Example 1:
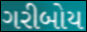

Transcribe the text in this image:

ગરીબોય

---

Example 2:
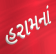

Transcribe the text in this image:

હરામનાં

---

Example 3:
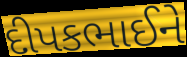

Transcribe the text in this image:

દીપકભાઈને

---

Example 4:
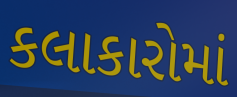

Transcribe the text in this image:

કલાકારોમાં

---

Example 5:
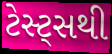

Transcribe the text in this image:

ટેસ્ટ્સથી